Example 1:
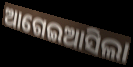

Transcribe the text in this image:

ଆଗେଇଆସିଲା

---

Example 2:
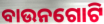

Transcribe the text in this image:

ବାଉନଗୋଟି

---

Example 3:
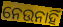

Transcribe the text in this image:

ନେଉନାହିଁ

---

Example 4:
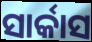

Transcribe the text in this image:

ସାର୍କାସ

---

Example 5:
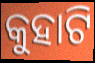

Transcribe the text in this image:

କୁହାଟି